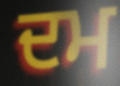
ਦਮ